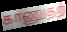
காணுதற்